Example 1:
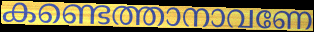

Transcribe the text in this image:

കണ്ടെത്താനാവണേ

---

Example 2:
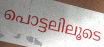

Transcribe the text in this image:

പൊട്ടലിലൂടെ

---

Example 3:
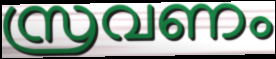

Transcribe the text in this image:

സ്രവണം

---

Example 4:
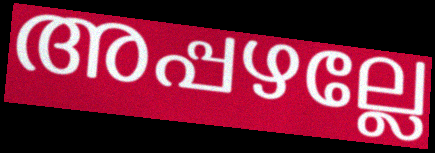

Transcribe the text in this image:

അപ്പഴല്ലേ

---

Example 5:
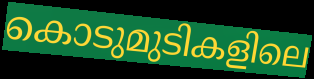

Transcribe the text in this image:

കൊടുമുടികളിലെ